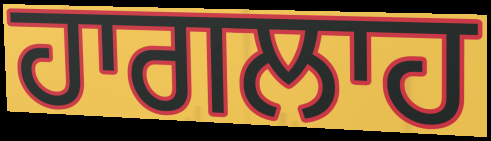
ਹਾਗਲਾਹ